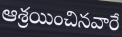
ఆశ్రయించినవారే